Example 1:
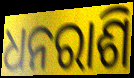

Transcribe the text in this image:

ଧନରାଶି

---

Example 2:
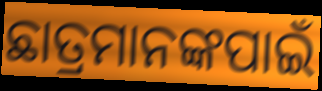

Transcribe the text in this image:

ଛାତ୍ରମାନଙ୍କପାଇଁ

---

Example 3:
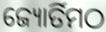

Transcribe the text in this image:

ଜ୍ୟୋର୍ତିମଠ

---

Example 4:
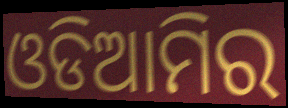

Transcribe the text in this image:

ଓଡିଆମିର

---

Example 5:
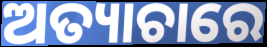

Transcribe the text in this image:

ଅତ୍ୟାଚାରେ